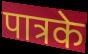
पात्रके